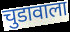
चुडावाला